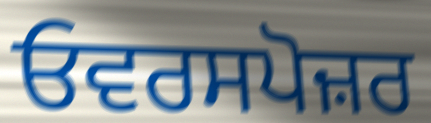
ਓਵਰਸਪੋਜ਼ਰ